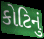
કોટિનું